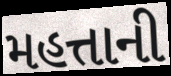
મહત્તાની